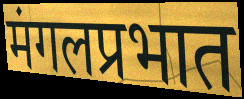
मंगलप्रभात